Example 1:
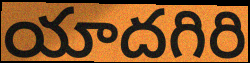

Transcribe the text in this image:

యాదగిరి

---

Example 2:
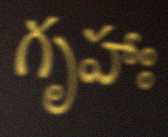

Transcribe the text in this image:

గృహాః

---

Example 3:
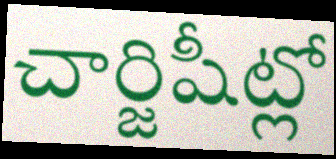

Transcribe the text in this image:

చార్జిషీట్లో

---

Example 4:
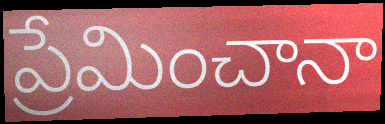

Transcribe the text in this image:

ప్రేమించానా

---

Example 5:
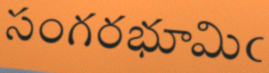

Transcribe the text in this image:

సంగరభూమిఁ